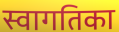
स्वागतिका